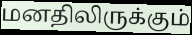
மனதிலிருக்கும்